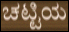
ಚಟ್ಟಿಯ